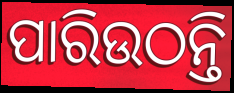
ପାରିଉଠନ୍ତି